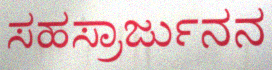
ಸಹಸ್ರಾರ್ಜುನನ